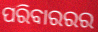
ପରିବାରରର